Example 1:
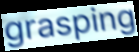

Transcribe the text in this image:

grasping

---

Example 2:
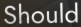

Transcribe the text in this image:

Should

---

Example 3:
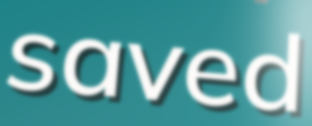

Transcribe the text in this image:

saved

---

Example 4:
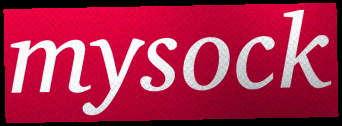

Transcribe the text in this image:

mysock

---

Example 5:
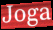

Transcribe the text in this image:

Joga